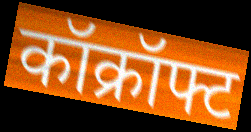
कॉक्रॉफ्ट